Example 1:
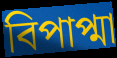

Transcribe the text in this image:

বিপাপ্মা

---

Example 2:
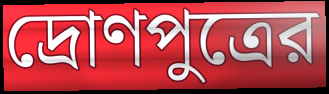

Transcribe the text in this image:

দ্রোণপুত্রের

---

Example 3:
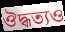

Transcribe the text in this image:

ঔদ্ধত্যও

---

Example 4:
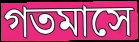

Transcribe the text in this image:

গতমাসে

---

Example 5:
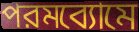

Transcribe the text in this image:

পরমব্যোমে